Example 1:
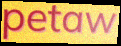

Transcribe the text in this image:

petaw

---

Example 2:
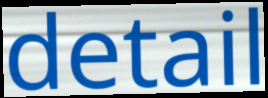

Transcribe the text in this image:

detail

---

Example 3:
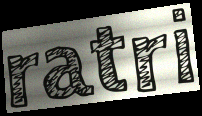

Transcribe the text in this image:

ratri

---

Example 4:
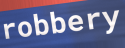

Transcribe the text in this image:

robbery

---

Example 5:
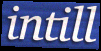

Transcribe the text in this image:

intill